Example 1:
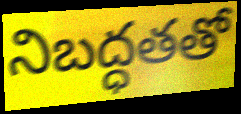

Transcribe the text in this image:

నిబద్ధతతో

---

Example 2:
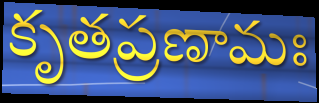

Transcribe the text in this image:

కృతప్రణామః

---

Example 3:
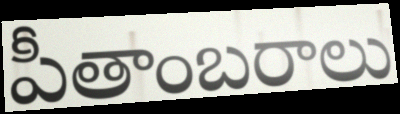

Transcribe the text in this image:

పీతాంబరాలు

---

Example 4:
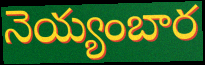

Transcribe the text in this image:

నెయ్యంబార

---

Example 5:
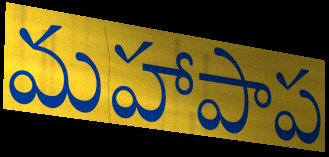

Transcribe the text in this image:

మహాపాప